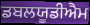
ਡਬਲਯੂਡੀਐਮ